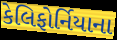
કેલિફોર્નિયાના